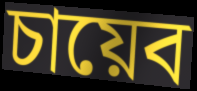
চায়েব